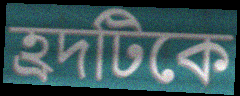
হ্রদটিকে